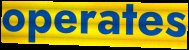
operates